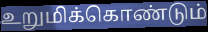
உறுமிக்கொண்டும்